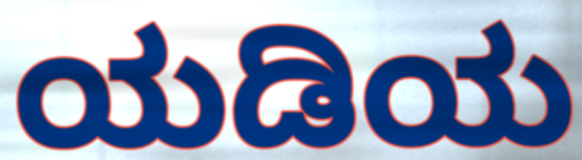
ಯಡಿಯ